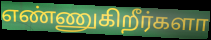
எண்ணுகிறீர்களா